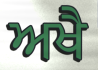
ਅਖੈ